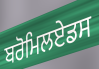
ਬਰੋਮਿਲਏਡਸ